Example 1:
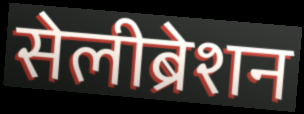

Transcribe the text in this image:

सेलीब्रेशन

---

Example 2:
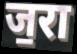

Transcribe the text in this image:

ज॒रा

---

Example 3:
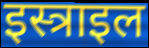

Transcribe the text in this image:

इस्त्राइल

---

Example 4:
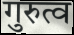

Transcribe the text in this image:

गुरुत्व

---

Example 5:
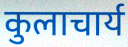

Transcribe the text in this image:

कुलाचार्य